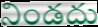
నిండదు